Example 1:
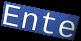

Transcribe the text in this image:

Ente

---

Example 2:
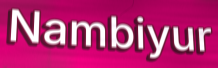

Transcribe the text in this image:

Nambiyur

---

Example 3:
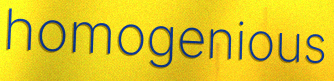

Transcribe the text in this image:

homogenious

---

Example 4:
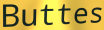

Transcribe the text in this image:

Buttes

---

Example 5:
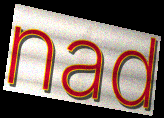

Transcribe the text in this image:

nad